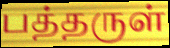
பத்தருள்